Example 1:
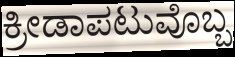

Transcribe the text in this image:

ಕ್ರೀಡಾಪಟುವೊಬ್ಬ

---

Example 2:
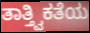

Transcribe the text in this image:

ತಾತ್ತ್ವಿಕತೆಯ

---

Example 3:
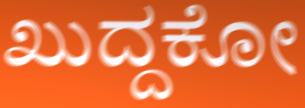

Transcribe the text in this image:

ಖುದ್ದಕೋ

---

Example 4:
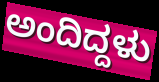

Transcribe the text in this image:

ಅಂದಿದ್ದಳು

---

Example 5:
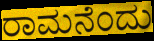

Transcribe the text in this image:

ರಾಮನೆಂದು